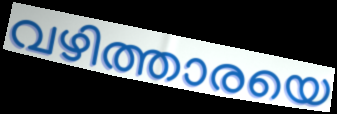
വഴിത്താരയെ